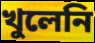
খুলেনি